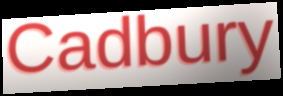
Cadbury